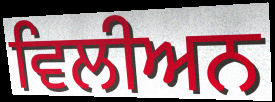
ਵਿਲੀਅਨ